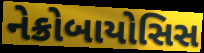
નેક્રોબાયોસિસ